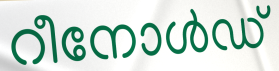
റീനോൾഡ്